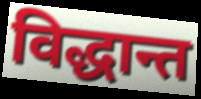
विद्धान्त